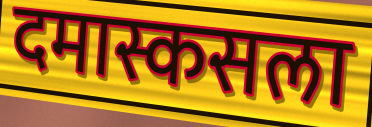
दमास्कसला